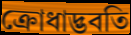
ক্রোধাদ্ভবতি